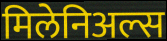
मिलेनिअल्स